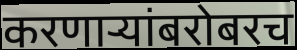
करणाऱ्यांबरोबरच